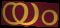
യം